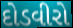
દોડવીરો